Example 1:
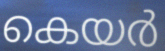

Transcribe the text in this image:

കെയർ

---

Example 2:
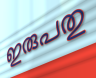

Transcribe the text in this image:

ഇരുപതു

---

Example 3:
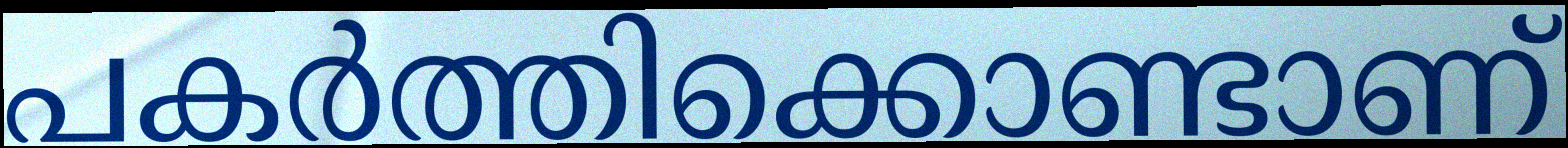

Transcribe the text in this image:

പകർത്തിക്കൊണ്ടാണ്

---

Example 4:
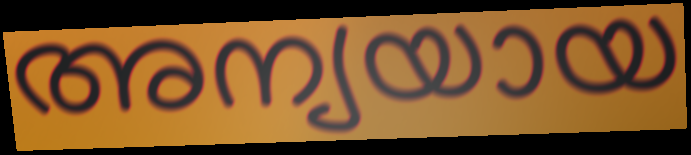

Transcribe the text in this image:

അന്യയായ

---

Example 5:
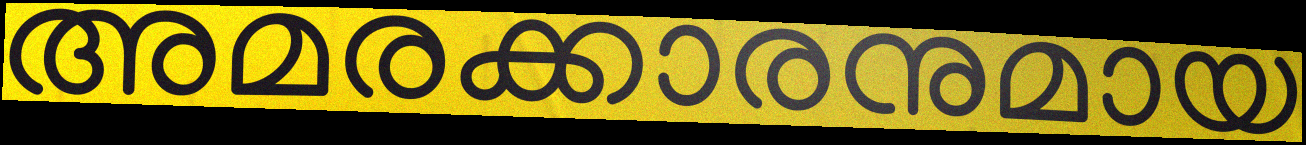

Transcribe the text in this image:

അമരക്കാരനുമായ